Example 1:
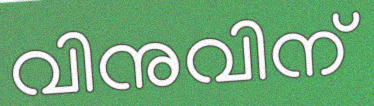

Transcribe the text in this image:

വിനുവിന്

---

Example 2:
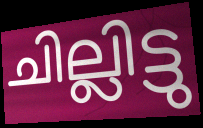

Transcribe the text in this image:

ചില്ലിട്ടു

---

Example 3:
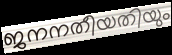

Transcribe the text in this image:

ജനനതീയതിയും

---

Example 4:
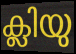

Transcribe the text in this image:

ക്ലിയു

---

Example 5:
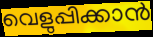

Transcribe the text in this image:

വെളുപ്പിക്കാൻ